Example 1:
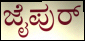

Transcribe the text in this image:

ಜೈಪುರ್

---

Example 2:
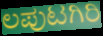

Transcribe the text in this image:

ಲಪುಟಗಿರಿ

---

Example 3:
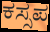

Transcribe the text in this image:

ಕಸ್ಸಪ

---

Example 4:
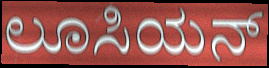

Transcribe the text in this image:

ಲೂಸಿಯನ್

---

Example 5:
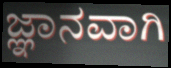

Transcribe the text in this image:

ಜ್ಞಾನವಾಗಿ